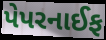
પેપરનાઈફ